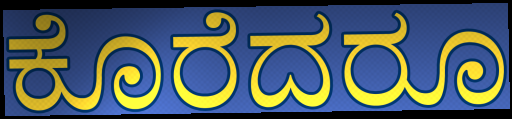
ಕೊರೆದರೂ